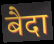
बैदा